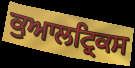
ਕੁਆਲਟ੍ਰਿਕਸ